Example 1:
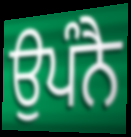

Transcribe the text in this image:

ਉਪੰਨੈ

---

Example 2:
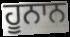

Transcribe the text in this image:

ਹੂਨਾਨ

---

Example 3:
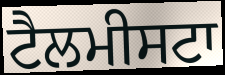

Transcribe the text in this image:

ਟੈਲਮੀਸਟਾ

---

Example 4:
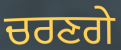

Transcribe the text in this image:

ਚਰਣਗੇ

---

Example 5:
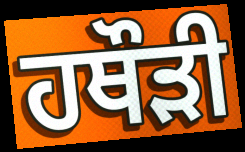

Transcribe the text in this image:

ਹਥੌੜੀ